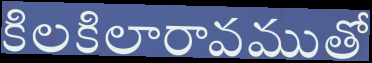
కిలకిలారావముతో